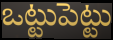
ఒట్టుపెట్టు